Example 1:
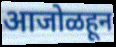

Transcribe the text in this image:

आजोळहून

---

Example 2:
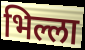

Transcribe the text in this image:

भिल्ला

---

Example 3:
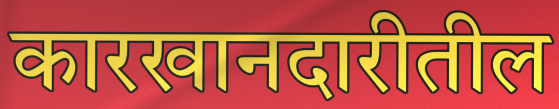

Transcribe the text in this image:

कारखानदारीतील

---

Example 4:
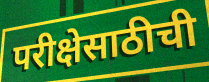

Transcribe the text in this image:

परीक्षेसाठीची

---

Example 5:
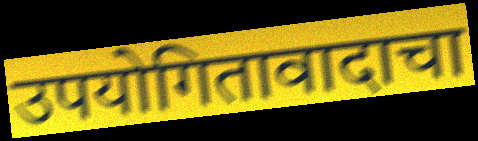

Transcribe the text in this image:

उपयोगितावादाचा